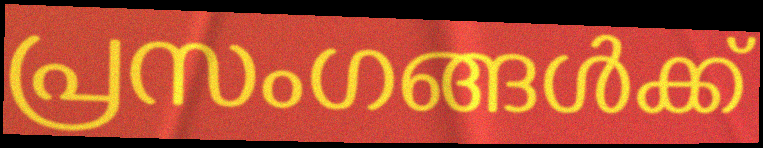
പ്രസംഗങ്ങൾക്ക്